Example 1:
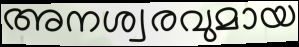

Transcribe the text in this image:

അനശ്വരവുമായ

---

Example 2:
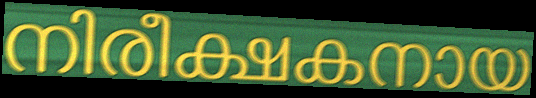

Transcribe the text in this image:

നിരീക്ഷകനായ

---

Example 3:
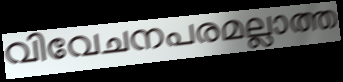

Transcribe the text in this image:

വിവേചനപരമല്ലാത്ത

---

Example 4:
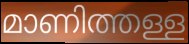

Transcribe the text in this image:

മാണിത്തള്ള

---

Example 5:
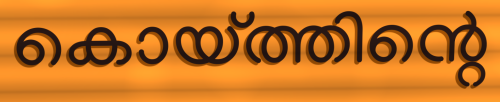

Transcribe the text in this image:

കൊയ്ത്തിന്റെ